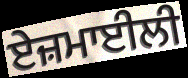
ਏਜ਼ਮਾਈਲੀ